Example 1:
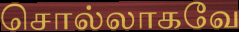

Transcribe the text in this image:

சொல்லாகவே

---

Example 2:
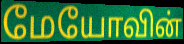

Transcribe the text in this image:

மேயோவின்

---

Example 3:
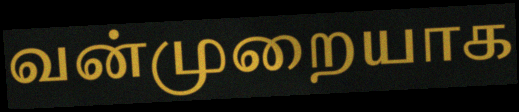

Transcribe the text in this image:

வன்முறையாக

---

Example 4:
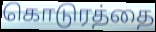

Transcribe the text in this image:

கொடுரத்தை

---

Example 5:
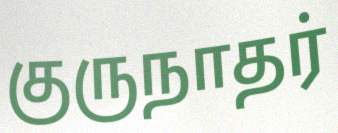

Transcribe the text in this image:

குருநாதர்